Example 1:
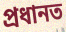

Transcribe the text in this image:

প্রধানত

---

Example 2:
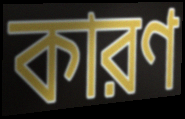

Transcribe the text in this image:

কারণ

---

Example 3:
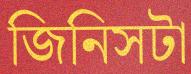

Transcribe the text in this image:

জিনিসটা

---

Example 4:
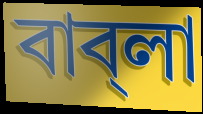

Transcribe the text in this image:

বাব্‌লা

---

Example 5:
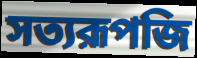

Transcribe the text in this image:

সত্যরূপজি